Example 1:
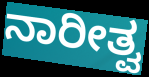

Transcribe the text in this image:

ನಾರೀತ್ವ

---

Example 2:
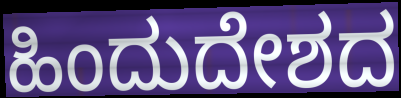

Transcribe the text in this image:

ಹಿಂದುದೇಶದ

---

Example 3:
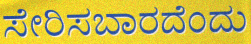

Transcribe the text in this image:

ಸೇರಿಸಬಾರದೆಂದು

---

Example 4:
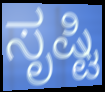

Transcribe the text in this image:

ಸೃಷ್ಟಿ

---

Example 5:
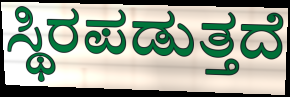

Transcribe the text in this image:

ಸ್ಥಿರಪಡುತ್ತದೆ